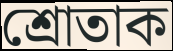
শ্ৰোতাক